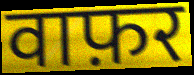
वाफ़र